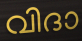
വിദാ